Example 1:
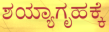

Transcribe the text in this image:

ಶಯ್ಯಾಗೃಹಕ್ಕೆ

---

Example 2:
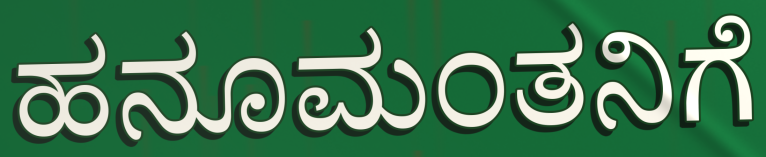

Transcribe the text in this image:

ಹನೂಮಂತನಿಗೆ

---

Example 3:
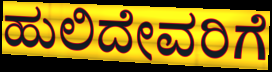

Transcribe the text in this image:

ಹುಲಿದೇವರಿಗೆ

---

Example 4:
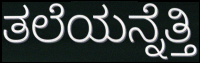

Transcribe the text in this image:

ತಲೆಯನ್ನೆತ್ತಿ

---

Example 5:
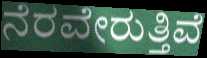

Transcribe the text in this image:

ನೆರವೇರುತ್ತಿವೆ